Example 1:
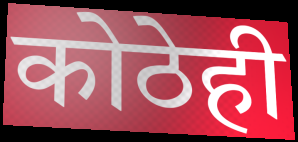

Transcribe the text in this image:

कोठेही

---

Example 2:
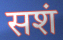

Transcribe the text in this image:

सशं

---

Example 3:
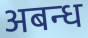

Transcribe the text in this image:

अबन्ध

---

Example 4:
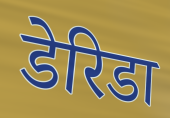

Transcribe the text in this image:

डेरिडा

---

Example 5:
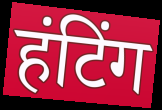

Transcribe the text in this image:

हंटिंग